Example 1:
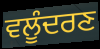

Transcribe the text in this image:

ਵਲੂੰਦਰਣ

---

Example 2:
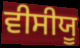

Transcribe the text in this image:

ਵੀਸੀਯੂ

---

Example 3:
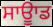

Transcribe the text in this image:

ਸਾਊਾਡ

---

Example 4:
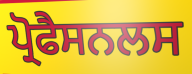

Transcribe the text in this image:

ਪ੍ਰੋਫੈਸਨਲਸ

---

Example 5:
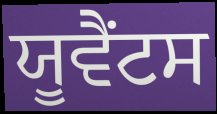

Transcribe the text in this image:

ਯੂਵੈਂਟਸ